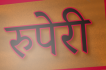
रुपेरी